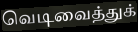
வெடிவைத்துக்